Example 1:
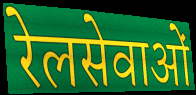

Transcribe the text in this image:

रेलसेवाओं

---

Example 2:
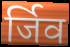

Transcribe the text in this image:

र्जिव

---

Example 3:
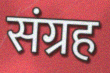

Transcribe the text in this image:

संग्रह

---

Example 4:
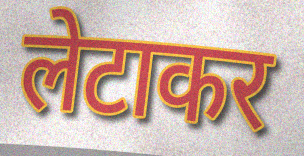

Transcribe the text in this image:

लेटाकर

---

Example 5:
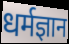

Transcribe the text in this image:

धर्मज्ञान